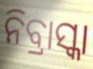
ନିବ୍ରାସ୍କା